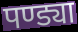
पण्ड्या